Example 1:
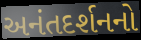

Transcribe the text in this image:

અનંતદર્શનનો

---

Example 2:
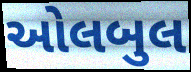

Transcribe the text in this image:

ઓલબુલ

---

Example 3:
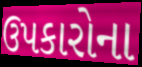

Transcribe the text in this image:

ઉપકારોના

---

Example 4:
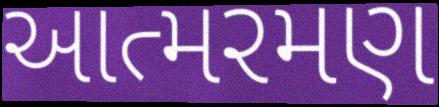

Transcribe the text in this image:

આત્મરમણ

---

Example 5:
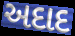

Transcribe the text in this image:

અદાદ